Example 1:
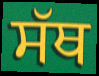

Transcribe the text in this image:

ਸੱਥ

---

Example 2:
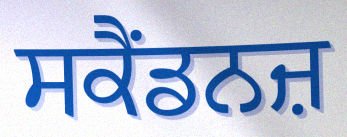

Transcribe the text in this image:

ਸਕੈਂਡਨਜ਼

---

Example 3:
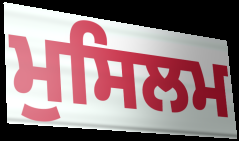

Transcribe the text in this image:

ਮੁਸਿਲਮ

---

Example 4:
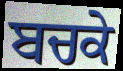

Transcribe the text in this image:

ਬਚਕੇ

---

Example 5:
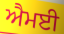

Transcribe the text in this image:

ਐਮਈ